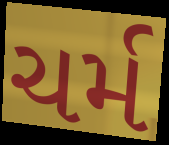
ચર્મ